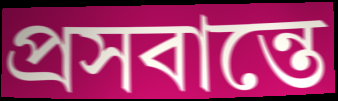
প্রসবান্তে